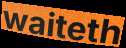
waiteth